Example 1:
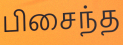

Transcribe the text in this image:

பிசைந்த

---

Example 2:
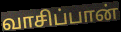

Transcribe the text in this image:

வாசிப்பான்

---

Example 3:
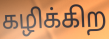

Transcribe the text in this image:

கழிக்கிற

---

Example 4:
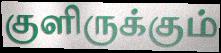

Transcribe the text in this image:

குளிருக்கும்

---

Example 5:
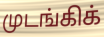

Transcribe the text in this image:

முடங்கிக்